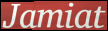
Jamiat